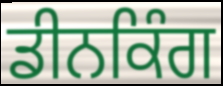
ਡੀਨਕਿੰਗ